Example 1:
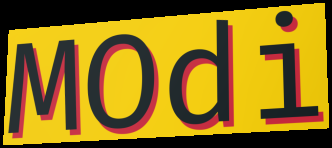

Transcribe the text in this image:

MOdi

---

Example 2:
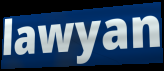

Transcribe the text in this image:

lawyan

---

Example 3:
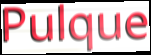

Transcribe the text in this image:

Pulque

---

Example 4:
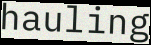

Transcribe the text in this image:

hauling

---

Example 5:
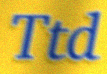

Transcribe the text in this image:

Ttd